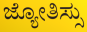
ಜ್ಯೋತಿಸ್ಸು